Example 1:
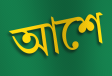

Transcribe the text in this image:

আশে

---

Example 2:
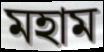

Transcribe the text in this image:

মহাম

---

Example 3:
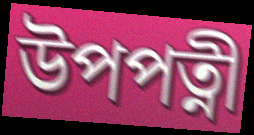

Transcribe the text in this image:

উপপত্নী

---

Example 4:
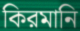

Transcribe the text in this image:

কিরমানি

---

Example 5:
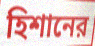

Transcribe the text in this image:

হিশানের